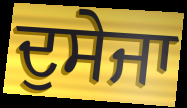
ਦੁਸੇਜਾ